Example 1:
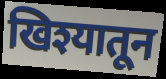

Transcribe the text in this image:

खिश्यातून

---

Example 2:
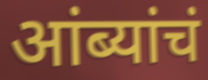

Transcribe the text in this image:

आंब्यांचं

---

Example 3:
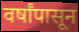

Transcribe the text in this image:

वर्षांपासून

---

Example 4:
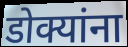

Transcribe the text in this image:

डोक्यांना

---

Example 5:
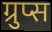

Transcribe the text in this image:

ग्रुप्स